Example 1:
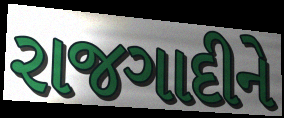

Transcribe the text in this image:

રાજગાદીને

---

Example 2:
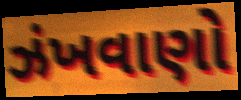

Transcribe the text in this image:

ઝંખવાણો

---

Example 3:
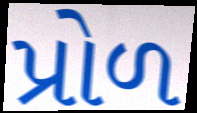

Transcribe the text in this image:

પ્રોળ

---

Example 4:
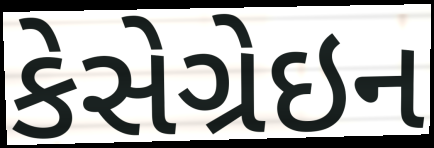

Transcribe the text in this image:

કેસેગ્રેઇન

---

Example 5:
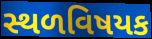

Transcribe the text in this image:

સ્થળવિષયક